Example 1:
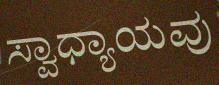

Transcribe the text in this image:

ಸ್ವಾಧ್ಯಾಯವು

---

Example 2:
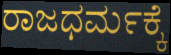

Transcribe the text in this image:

ರಾಜಧರ್ಮಕ್ಕೆ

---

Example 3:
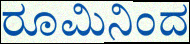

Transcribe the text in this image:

ರೂಮಿನಿಂದ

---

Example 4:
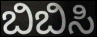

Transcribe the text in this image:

ಬಿಬಿಸಿ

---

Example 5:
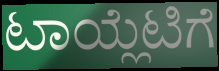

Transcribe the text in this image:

ಟಾಯ್ಲೆಟಿಗೆ